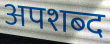
अपशब्‍द